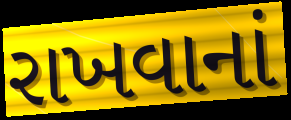
રાખવાનાં